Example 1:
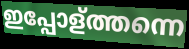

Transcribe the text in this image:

ഇപ്പോള്ത്തന്നെ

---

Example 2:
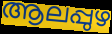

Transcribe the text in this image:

ആലപ്പുഴ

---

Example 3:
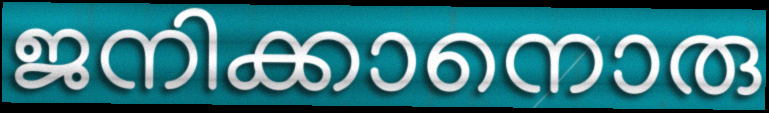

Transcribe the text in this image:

ജനിക്കാനൊരു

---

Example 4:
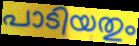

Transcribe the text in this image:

പാടിയതും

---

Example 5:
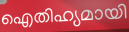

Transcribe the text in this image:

ഐതിഹ്യമായി